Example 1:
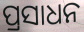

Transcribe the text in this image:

ପ୍ରସାଧନ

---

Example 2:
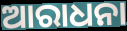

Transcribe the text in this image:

ଆରାଧନା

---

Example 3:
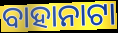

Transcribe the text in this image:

ବାହାନାଟା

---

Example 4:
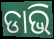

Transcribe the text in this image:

ଡାଭି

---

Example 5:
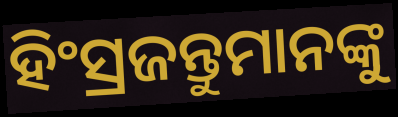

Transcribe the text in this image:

ହିଂସ୍ରଜନ୍ତୁମାନଙ୍କୁ